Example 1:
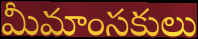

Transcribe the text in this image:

మీమాంసకులు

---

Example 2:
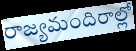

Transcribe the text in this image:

రాజ్యమందిరాల్లో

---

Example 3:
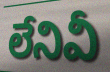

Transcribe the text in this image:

లేనివీ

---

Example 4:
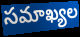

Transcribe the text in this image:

సమాఖ్యల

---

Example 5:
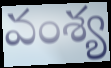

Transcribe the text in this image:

వంశ్య